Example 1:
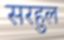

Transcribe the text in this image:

सरहुल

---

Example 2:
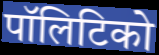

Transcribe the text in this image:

पॉलिटिको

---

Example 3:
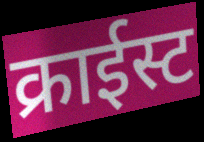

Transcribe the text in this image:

क्राईस्ट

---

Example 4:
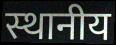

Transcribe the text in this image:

स्‍थानीय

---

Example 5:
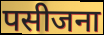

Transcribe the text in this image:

पसीजना